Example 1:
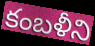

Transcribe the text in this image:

కంబళీని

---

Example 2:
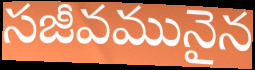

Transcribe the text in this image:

సజీవమునైన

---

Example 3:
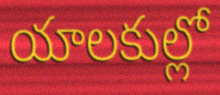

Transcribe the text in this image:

యాలకుల్లో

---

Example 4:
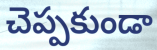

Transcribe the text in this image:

చెప్పకుండా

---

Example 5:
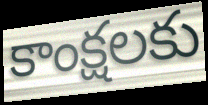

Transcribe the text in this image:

కాంక్షలకు